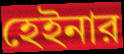
হেইনার